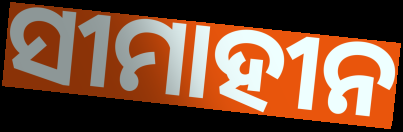
ସୀମାହୀନ